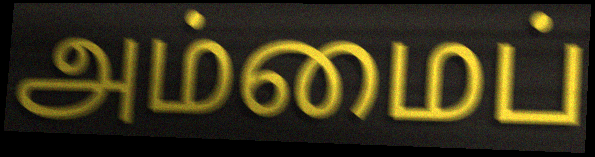
அம்மைப்